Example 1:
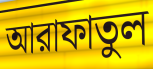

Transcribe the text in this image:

আরাফাতুল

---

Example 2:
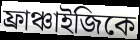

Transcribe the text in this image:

ফ্রাঞ্চাইজিকে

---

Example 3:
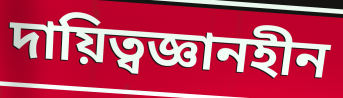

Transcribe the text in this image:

দায়িত্বজ্ঞানহীন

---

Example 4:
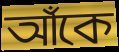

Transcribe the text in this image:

আঁকে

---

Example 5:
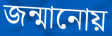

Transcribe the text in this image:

জন্মানোয়